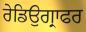
ਰੇਡਿਉਗ੍ਰਾਫਰ